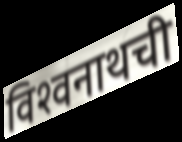
विश्वनाथची